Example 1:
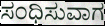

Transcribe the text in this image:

ಸಂಧಿಸುವಾಗ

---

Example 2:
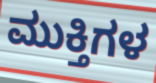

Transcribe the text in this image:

ಮುಕ್ತಿಗಳ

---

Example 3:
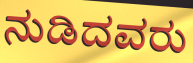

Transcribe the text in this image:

ನುಡಿದವರು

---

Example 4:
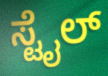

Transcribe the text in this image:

ಸ್ಟೈಲ್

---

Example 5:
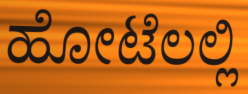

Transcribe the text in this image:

ಹೋಟೆಲಲ್ಲಿ